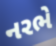
નરભે